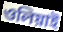
ওলিয়াই